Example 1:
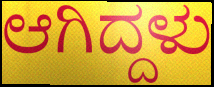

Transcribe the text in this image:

ಆಗಿದ್ದಳು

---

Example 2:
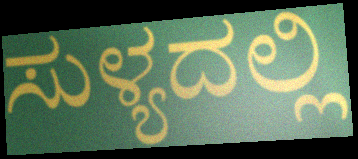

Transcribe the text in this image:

ಸುಳ್ಯದಲ್ಲಿ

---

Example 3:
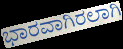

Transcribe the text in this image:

ಭಾರವಾಗಿರಲಾಗಿ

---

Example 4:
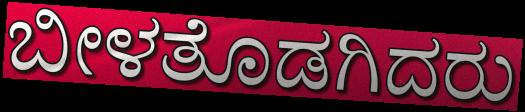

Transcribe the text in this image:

ಬೀಳತೊಡಗಿದರು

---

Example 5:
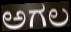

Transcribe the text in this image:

ಅಗಲ